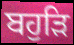
ਬਹੁੜਿ